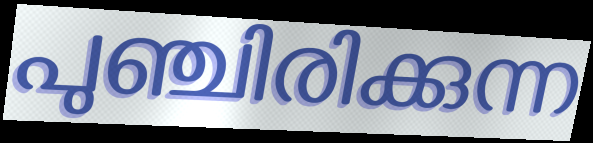
പുഞ്ചിരിക്കുന്ന